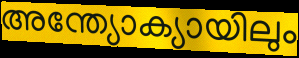
അന്ത്യോക്യായിലും